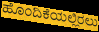
ಹೊಂದಿಕೆಯಲ್ಲಿರಲು